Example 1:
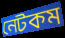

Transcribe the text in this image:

নেটকম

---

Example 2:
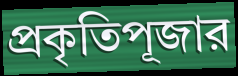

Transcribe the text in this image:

প্রকৃতিপূজার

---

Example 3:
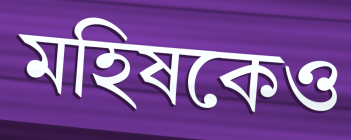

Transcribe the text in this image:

মহিষকেও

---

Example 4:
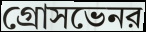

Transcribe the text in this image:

গ্রোসভেনর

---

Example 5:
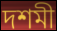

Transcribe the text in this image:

দশমী